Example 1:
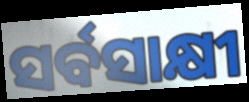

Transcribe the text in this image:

ସର୍ବସାକ୍ଷୀ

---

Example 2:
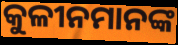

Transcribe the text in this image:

କୁଳୀନମାନଙ୍କ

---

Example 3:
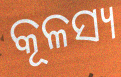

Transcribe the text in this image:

କୂଳସ୍ଯ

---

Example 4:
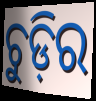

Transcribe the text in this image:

ଚୁଡ଼ିର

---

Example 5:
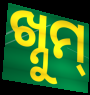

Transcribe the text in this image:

ଖ୍ନୁମ୍